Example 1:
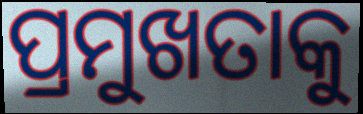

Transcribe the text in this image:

ପ୍ରମୁଖତାକୁ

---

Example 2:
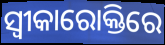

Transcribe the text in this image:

ସ୍ୱୀକାରୋକ୍ତିରେ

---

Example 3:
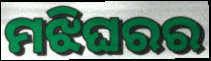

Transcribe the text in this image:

ମଝିଘରର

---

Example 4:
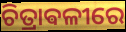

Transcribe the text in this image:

ଚିତ୍ରାଵଳୀରେ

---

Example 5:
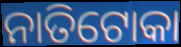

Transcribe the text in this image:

ନାତିଟୋକା